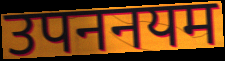
उपननयम